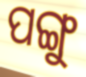
ପଙ୍ଗୁ